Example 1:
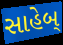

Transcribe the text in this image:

સાહેબ્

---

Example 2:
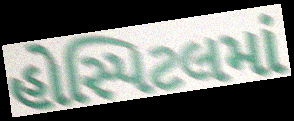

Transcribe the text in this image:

હોસ્પિટલમાં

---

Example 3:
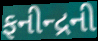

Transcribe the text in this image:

ફનીન્દ્રની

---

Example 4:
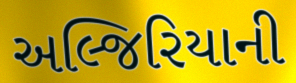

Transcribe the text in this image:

અલ્જિરિયાની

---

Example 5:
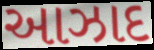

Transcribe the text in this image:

આઝાદ